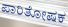
ಪಾರಿತೋಷಕ